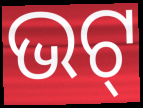
ଭଟ୍